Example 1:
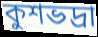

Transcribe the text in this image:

কুশভদ্রা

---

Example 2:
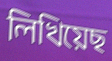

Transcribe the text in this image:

লিখিয়েছ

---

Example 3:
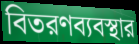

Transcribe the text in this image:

বিতরণব্যবস্থার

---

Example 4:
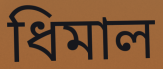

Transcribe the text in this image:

ধিমাল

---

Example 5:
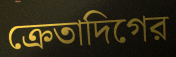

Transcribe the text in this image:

ক্রেতাদিগের